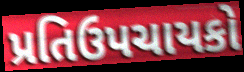
પ્રતિઉપચાયકો